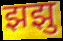
झझु